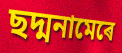
ছদ্মনামেৰে